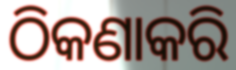
ଠିକଣାକରି